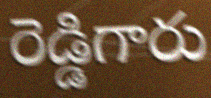
రెడ్డిగారు